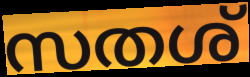
സതശ്